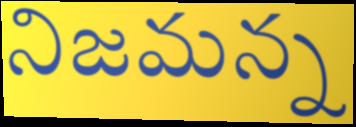
నిజమన్న